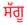
ਸੱਗੂ